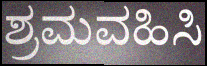
ಶ್ರಮವಹಿಸಿ